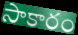
సాకారం